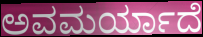
ಅವಮರ್ಯಾದೆ